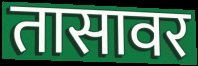
तासावर